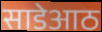
साडेआठ